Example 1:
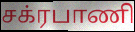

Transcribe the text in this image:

சக்ரபாணி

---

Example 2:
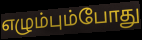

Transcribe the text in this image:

எழும்பும்போது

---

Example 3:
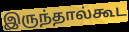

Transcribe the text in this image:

இருந்தால்கூட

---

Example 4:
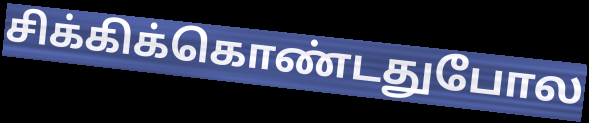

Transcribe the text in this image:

சிக்கிக்கொண்டதுபோல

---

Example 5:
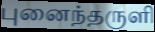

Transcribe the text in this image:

புனைந்தருளி